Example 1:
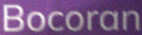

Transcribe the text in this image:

Bocoran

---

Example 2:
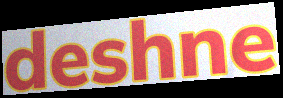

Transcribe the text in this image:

deshne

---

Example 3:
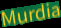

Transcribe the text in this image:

Murdia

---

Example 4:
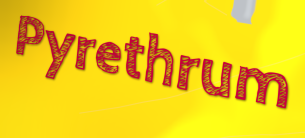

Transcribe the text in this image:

Pyrethrum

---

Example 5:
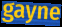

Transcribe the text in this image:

gayne